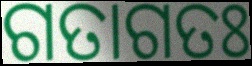
ଗତାଗତଃ